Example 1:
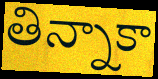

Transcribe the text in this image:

తిన్నాకా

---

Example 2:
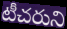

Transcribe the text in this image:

టీచరుని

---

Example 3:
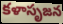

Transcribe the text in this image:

కళాసృజన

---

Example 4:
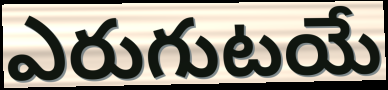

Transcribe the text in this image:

ఎరుగుటయే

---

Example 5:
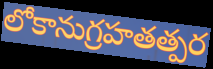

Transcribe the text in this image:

లోకానుగ్రహతత్పర